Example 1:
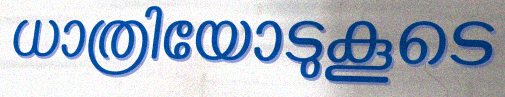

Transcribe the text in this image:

ധാത്രിയോടുകൂടെ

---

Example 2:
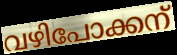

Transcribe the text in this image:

വഴിപോക്കന്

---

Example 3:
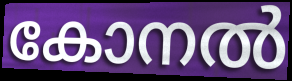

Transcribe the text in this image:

കോനൽ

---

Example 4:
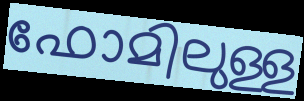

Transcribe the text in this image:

ഫോമിലുള്ള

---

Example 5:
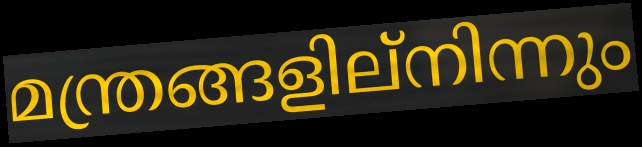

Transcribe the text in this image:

മന്ത്രങ്ങളില്നിന്നും